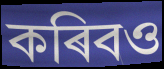
কৰিবও